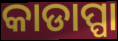
କାଡାପ୍ପା